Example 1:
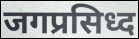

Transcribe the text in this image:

जगप्रसिध्द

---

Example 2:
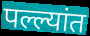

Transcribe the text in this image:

पल्ल्यांत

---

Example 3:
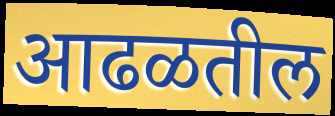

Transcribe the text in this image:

आढळतील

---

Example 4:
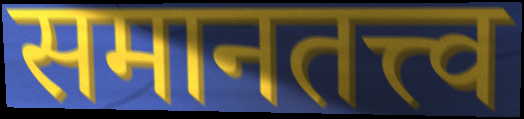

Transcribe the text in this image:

समानतत्त्व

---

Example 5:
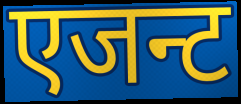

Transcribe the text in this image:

एजन्ट